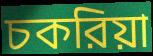
চকরিয়া